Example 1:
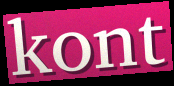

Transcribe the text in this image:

kont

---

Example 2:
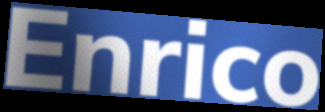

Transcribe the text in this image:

Enrico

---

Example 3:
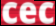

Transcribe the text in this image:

cec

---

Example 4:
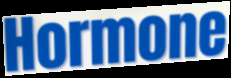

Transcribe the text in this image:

Hormone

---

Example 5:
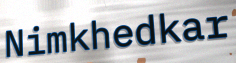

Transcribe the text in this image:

Nimkhedkar